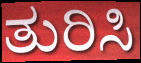
ತುರಿಸಿ